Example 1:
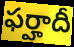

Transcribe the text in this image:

ఫర్హాదీ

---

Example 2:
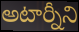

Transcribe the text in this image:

అటార్నీని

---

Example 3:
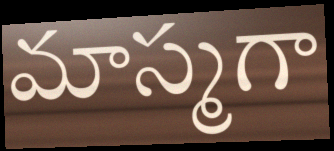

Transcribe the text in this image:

మాస్మగా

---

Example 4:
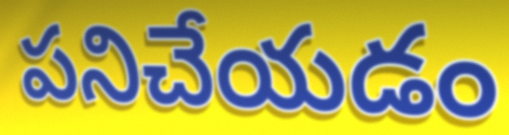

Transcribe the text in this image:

పనిచేయడం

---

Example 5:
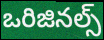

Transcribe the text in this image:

ఒరిజినల్స్